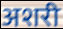
अशरी